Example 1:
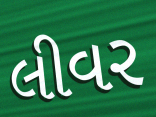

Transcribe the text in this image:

લીવર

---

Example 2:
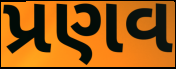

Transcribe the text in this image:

પ્રણવ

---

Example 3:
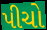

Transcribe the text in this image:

પીચો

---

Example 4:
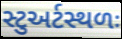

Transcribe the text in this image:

સ્ટુઅર્ટસ્થળઃ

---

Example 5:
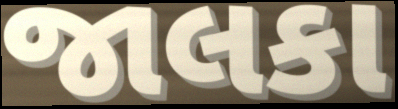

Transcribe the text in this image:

જાલકા